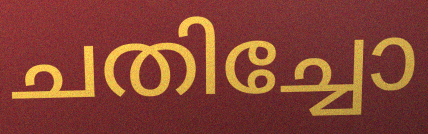
ചതിച്ചോ